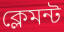
ক্লেমন্ট